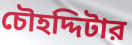
চৌহদ্দিটার